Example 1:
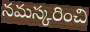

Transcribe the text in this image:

నమస్కరించి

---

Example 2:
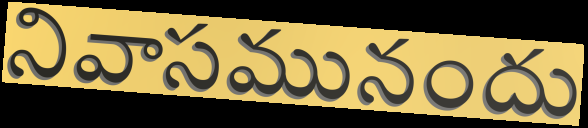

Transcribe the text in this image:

నివాసమునందు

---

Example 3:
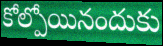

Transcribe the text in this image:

కోల్పోయినందుకు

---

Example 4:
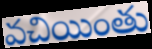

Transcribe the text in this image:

వచియింతు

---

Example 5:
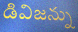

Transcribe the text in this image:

డివిజన్ను